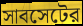
সাবসেটের